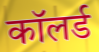
कॉलर्ड